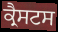
ਕ੍ਰੈਸਟਸ